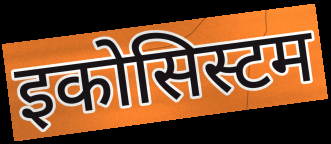
इकोसिस्टम